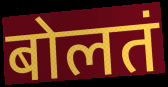
बोलतं